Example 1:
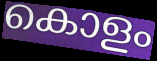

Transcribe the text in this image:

കൊളം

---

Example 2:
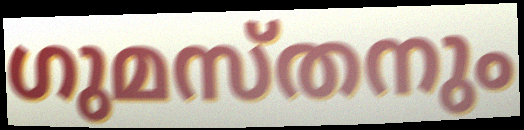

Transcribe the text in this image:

ഗുമസ്തനും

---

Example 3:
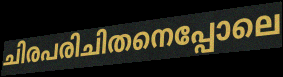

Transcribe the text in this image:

ചിരപരിചിതനെപ്പോലെ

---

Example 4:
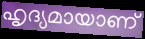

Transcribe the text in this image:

ഹൃദ്യമായാണ്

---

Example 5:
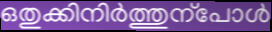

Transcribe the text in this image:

ഒതുക്കിനിർത്തുന്പോൾ